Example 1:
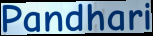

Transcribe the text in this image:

Pandhari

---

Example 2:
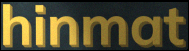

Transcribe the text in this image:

hinmat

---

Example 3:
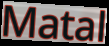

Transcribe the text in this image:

Matal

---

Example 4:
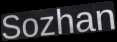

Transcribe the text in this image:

Sozhan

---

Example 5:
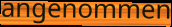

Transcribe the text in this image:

angenommen